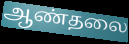
ஆண்தலை